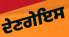
ਦੇਣਗੇਇਸ